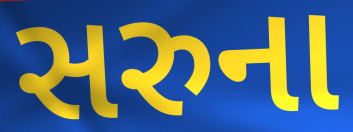
સરુના